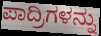
ಪಾದ್ರಿಗಳನ್ನು